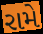
રામે